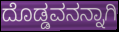
ದೊಡ್ಡವನನ್ನಾಗಿ